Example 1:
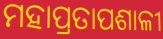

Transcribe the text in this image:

ମହାପ୍ରତାପଶାଳୀ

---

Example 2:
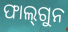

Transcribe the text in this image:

ଫାଲ୍‍ଗୁନ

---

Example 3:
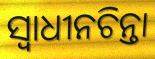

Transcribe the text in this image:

ସ୍ୱାଧୀନଚିନ୍ତା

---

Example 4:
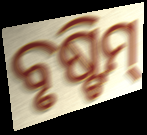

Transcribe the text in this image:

ବୃଷ୍ଟିମ୍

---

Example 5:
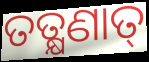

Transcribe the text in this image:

ତତ୍କ୍ଷଣାତ୍